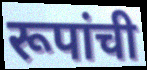
रूपांची